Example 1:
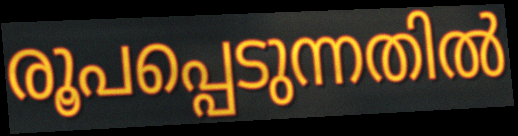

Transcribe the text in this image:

രൂപപ്പെടുന്നതിൽ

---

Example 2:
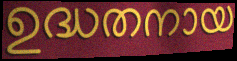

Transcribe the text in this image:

ഉദ്ധതനായ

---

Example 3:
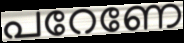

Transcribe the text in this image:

പറേണേ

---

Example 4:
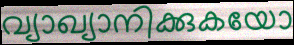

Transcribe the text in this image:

വ്യാഖ്യാനിക്കുകയോ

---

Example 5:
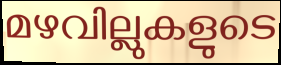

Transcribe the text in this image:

മഴവില്ലുകളുടെ